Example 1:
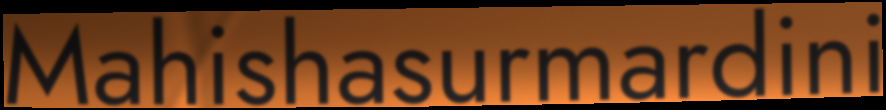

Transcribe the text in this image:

Mahishasurmardini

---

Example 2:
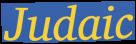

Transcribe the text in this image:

Judaic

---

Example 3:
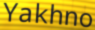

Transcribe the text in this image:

Yakhno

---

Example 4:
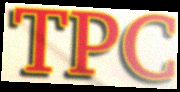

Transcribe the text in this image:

TPC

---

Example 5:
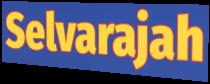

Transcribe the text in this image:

Selvarajah